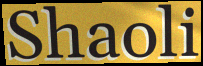
Shaoli